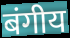
बंगीय